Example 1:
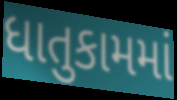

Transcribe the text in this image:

ધાતુકામમાં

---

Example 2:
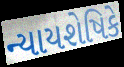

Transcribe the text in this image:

ન્યાયશેષિકે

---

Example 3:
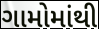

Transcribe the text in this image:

ગામોમાંથી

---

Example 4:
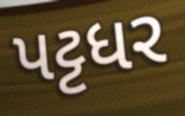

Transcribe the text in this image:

પટ્ટધર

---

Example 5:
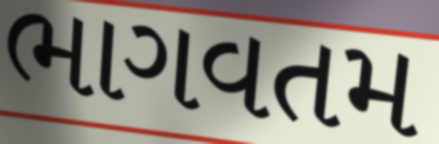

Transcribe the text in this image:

ભાગવતમ